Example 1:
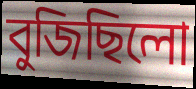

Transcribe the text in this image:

বুজিছিলো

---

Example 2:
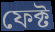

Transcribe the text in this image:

ফেক্ট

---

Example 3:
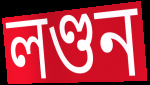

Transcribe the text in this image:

লণ্ডন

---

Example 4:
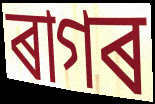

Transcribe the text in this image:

ৰাগৰ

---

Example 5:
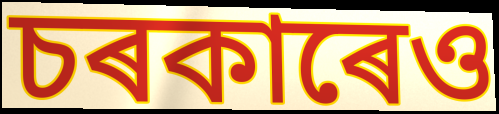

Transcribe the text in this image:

চৰকাৰেও